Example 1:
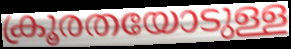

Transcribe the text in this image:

ക്രൂരതയോടുള്ള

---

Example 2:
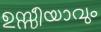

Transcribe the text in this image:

ഉസ്സീയാവും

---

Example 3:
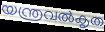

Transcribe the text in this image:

യന്ത്രവൽകൃത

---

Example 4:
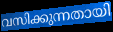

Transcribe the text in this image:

വസിക്കുന്നതായി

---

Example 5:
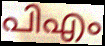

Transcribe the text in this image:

പിഎം